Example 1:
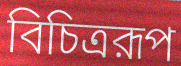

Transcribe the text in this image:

বিচিত্ররূপ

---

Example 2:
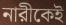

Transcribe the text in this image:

নারীকেই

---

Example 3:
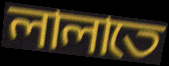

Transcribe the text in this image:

লালাতে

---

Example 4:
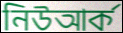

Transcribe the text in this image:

নিউআর্ক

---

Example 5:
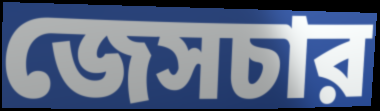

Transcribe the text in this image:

জেসচার